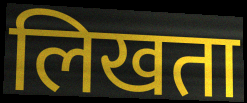
लिखता